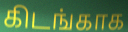
கிடங்காக